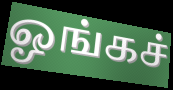
ஓங்கச்